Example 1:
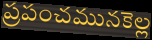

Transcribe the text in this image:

ప్రపంచమునకెల్ల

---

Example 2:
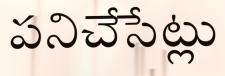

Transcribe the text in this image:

పనిచేసేట్లు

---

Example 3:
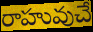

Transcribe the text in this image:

రాహువుచే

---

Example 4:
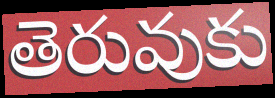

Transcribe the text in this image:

తెరువుకు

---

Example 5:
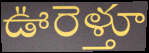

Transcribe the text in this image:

ఊరెళ్తూ